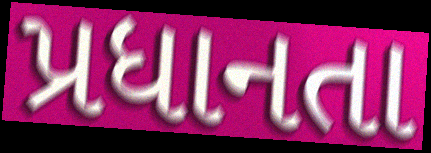
પ્રધાનતા